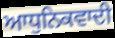
ਆਧੁਨਿਕਵਾਦੀ